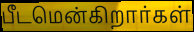
பீடமென்கிறார்கள்